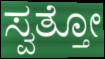
ಸ್ವತ್ತೋ